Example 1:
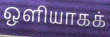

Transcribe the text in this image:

ஒளியாகக்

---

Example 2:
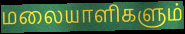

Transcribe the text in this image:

மலையாளிகளும்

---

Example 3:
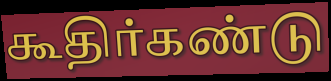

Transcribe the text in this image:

கூதிர்கண்டு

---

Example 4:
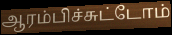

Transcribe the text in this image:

ஆரம்பிச்சுட்டோம்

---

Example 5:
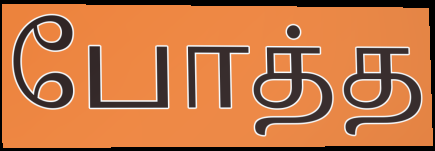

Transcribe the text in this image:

போத்த